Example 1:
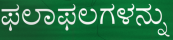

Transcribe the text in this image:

ಫಲಾಫಲಗಳನ್ನು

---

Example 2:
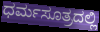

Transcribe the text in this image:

ಧರ್ಮಸೂತ್ರದಲ್ಲಿ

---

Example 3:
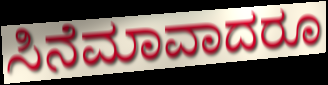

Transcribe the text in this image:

ಸಿನೆಮಾವಾದರೂ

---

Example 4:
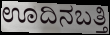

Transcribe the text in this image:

ಊದಿನಬತ್ತಿ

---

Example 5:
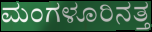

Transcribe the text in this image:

ಮಂಗಳೂರಿನತ್ತ